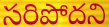
సరిపోదని